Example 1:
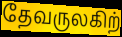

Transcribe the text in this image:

தேவருலகிற்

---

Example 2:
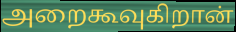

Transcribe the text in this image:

அறைகூவுகிறான்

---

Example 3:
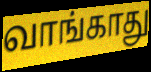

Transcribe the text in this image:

வாங்காது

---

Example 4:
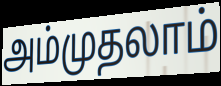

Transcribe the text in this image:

அம்முதலாம்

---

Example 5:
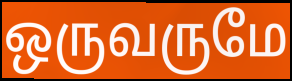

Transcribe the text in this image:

ஒருவருமே